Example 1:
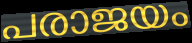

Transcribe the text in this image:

പരാജയം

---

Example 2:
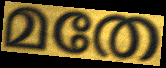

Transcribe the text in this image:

മതേ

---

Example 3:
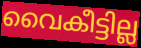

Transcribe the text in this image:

വൈകീട്ടില്ല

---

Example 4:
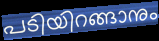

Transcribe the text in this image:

പടിയിറങ്ങാനും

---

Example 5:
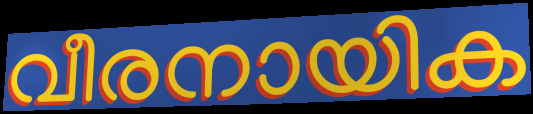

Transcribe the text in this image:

വീരനായിക